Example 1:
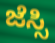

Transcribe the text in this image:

ಜೆಸ್ಸಿ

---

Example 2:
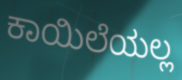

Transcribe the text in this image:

ಕಾಯಿಲೆಯಲ್ಲ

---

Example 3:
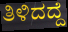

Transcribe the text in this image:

ತಿಳಿದದ್ದೆ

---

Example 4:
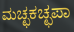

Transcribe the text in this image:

ಮಚ್ಛಕಚ್ಛಪಾ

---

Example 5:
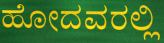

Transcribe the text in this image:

ಹೋದವರಲ್ಲಿ